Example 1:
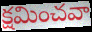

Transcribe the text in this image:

క్షమించవా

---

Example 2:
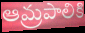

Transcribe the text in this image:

ఆమ్రపాలికి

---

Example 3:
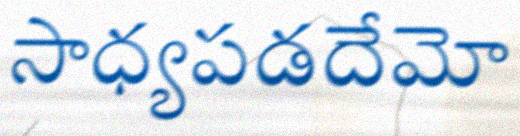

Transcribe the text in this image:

సాధ్యపడదేమో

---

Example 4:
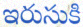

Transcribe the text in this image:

ఇరుసుకి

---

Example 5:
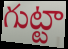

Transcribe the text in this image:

గుట్టా